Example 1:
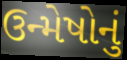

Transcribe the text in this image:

ઉન્મેષોનું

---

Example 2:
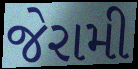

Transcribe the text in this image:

જેરામી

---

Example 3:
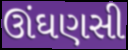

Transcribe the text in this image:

ઊંઘણસી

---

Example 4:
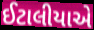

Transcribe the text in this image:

ઈટાલીયાએ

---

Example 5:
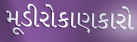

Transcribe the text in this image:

મૂડીરોકાણકારો